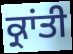
ਕ੍ਰਾਂਤੀ